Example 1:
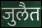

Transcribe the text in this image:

जुलैत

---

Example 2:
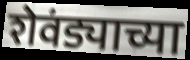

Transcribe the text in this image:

शेवंड्याच्या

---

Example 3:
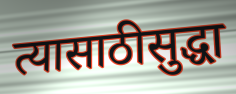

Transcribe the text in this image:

त्यासाठीसुद्धा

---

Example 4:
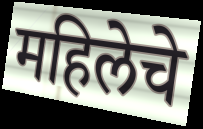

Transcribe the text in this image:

महिलेचे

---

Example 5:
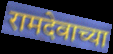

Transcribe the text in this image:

रामदेवाच्या